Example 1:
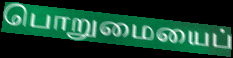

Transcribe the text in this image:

பொறுமையைப்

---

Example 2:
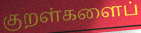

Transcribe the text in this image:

குறள்களைப்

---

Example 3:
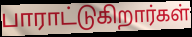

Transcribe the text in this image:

பாராட்டுகிறார்கள்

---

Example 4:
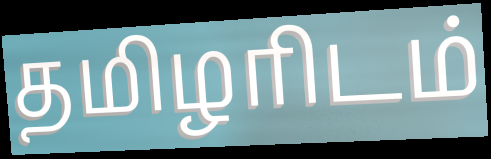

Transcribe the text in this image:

தமிழரிடம்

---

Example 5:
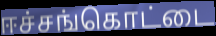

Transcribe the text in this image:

ஈச்சங்கொட்டை